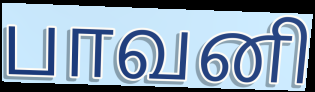
பாவனி